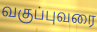
வகுப்புவரை